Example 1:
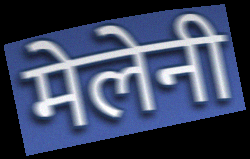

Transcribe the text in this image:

मेलेनी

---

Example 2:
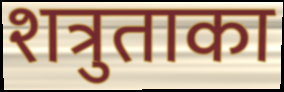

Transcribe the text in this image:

शत्रुताका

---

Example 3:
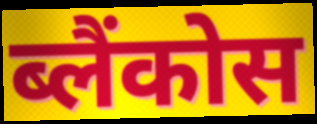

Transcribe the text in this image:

ब्लैंकोस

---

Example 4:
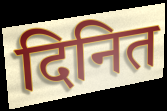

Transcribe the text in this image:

दिनित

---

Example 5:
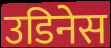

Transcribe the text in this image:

उडिनेस